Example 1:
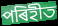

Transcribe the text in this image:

পৰিহীত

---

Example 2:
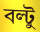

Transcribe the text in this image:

বল্টু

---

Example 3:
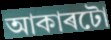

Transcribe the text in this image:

আকাৰটো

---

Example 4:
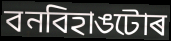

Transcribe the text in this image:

বনবিহাঙটোৰ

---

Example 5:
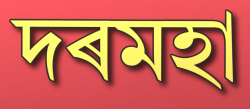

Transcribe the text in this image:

দৰমহা